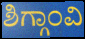
ಶಿಗ್ಗಾಂವಿ